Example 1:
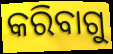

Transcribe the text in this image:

କରିବାଗୁ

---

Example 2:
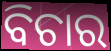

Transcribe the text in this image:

ବିଚାର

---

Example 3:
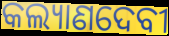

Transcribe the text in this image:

କଲ୍ୟାଣଦେବୀ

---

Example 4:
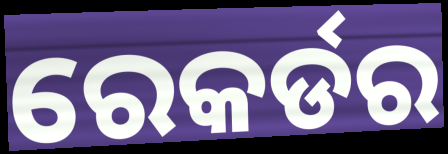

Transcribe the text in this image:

ରେକର୍ଡର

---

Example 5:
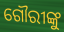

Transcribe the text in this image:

ଗୌରୀଙ୍କୁ